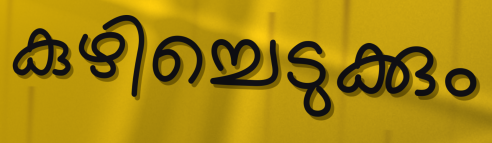
കുഴിച്ചെടുക്കും